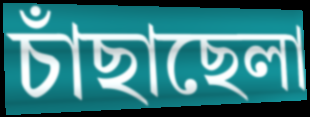
চাঁছাছেলা